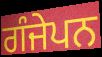
ਗੰਜੇਪਨ